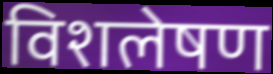
विशलेषण